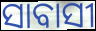
ସାବାସୀ